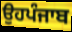
ਉਹਪੰਜਾਬ